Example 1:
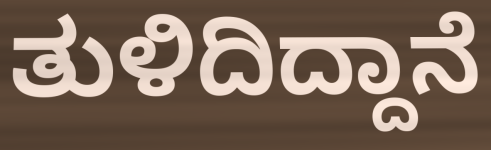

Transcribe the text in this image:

ತುಳಿದಿದ್ದಾನೆ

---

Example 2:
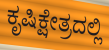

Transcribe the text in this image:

ಕೃಷಿಕ್ಷೇತ್ರದಲ್ಲಿ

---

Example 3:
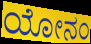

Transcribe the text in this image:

ಯೋನಂ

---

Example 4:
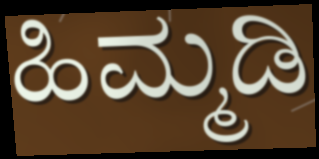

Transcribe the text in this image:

ಹಿಮ್ಮಡಿ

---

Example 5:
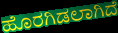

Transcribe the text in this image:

ಹೊರಗಿಡಲಾಗಿದೆ